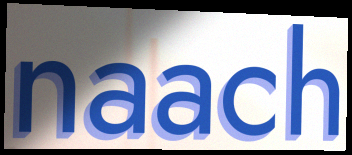
naach